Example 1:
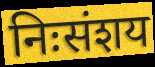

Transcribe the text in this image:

निःसंशय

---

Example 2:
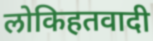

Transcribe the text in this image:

लोकिहतवादी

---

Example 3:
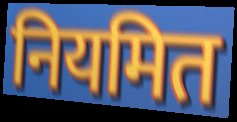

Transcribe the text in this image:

नियमित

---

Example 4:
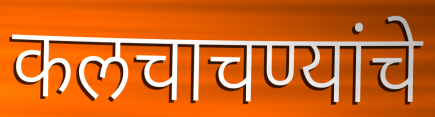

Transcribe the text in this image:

कलचाचण्यांचे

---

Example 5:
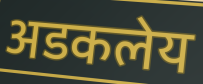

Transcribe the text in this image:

अडकलेय